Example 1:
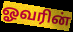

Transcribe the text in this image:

ஓவரின்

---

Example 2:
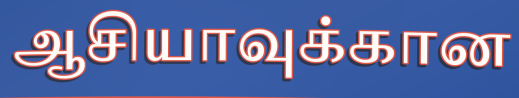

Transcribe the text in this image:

ஆசியாவுக்கான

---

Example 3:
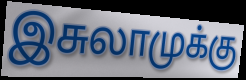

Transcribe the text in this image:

இசுலாமுக்கு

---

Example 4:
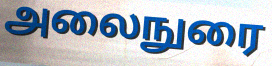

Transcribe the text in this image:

அலைநுரை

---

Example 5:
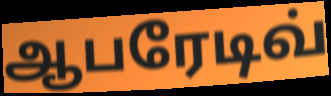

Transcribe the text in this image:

ஆபரேடிவ்